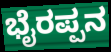
ಭೈರಪ್ಪನ